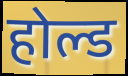
होल्ड